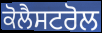
ਕੋਲੈਸਟਰੋਲ